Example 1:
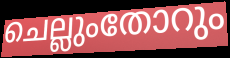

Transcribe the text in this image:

ചെല്ലുംതോറും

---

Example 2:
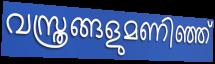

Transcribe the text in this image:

വസ്ത്രങ്ങളുമണിഞ്ഞ്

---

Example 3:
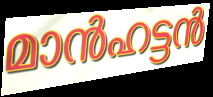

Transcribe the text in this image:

മാൻഹട്ടൻ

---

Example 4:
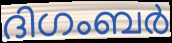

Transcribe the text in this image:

ദിഗംബർ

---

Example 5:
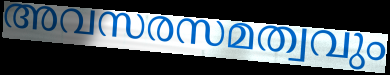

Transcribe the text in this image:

അവസരസമത്വവും